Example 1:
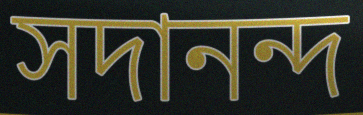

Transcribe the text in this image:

সদানন্দ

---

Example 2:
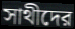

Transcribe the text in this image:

সাথীদের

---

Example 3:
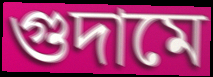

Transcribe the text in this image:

গুদামে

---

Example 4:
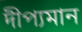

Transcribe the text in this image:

দীপ্যমান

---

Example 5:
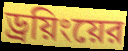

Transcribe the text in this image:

ড্রয়িংয়ের